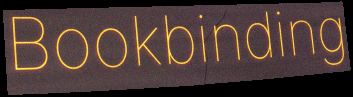
Bookbinding